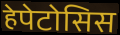
हेपेटोसिस